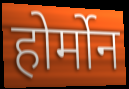
होर्मोन